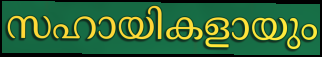
സഹായികളായും